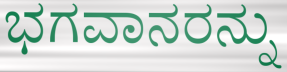
ಭಗವಾನರನ್ನು